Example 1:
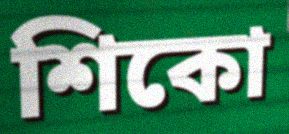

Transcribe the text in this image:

শিকো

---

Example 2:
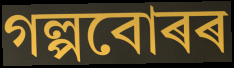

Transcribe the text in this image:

গল্পবোৰৰ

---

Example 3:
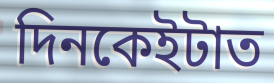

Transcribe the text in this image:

দিনকেইটাত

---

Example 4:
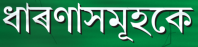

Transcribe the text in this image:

ধাৰণাসমূহকে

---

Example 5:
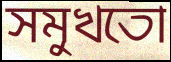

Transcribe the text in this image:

সমুখতো